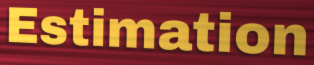
Estimation